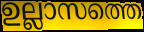
ഉല്ലാസത്തെ